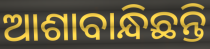
ଆଶାବାନ୍ଧିଛନ୍ତି